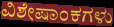
ವಿಶೇಷಾಂಕಗಳು